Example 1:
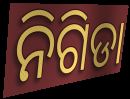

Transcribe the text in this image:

ନିଗିଡା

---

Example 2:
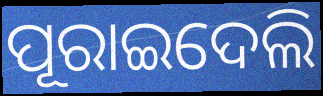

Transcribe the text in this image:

ପୂରାଇଦେଲି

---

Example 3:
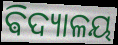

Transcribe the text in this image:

ଵିଦ୍ୟାଳୟ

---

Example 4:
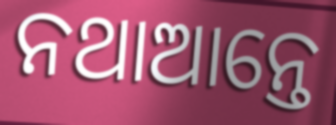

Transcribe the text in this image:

ନଥାଆନ୍ତେ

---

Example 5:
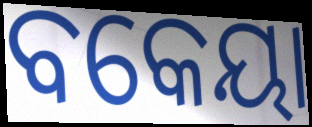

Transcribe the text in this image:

ବକେୟା